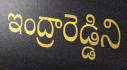
ఇంద్రారెడ్డిని